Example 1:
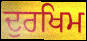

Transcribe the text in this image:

ਦੁਰਖਿਮ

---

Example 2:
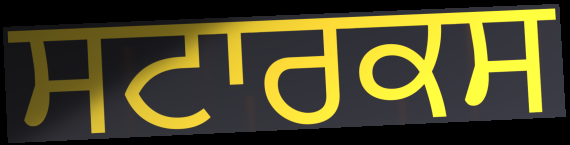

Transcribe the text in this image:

ਸਟਾਰਕਸ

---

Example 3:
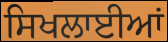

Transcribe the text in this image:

ਸਿਖਲਾਈਆਂ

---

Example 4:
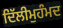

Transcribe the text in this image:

ਦਿੱਲੀਮੁਹੰਮਦ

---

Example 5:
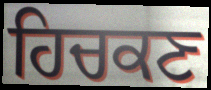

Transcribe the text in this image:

ਹਿਚਕਣ